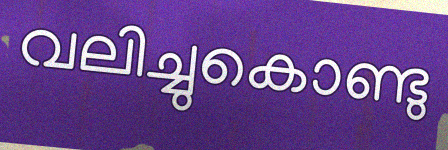
വലിച്ചുകൊണ്ടു